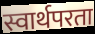
स्वार्थपरता